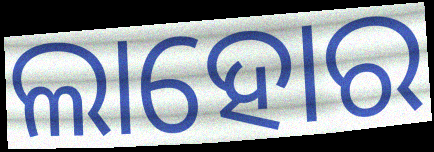
ଲାହୋର